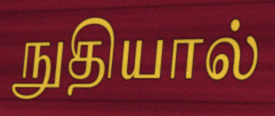
நுதியால்